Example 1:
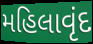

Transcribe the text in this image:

મહિલાવૃંદ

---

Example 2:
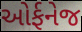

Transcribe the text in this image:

ઓર્ફનેજ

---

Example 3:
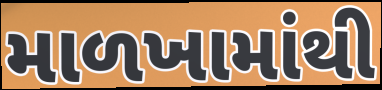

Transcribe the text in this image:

માળખામાંથી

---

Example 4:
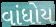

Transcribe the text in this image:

વાંધોય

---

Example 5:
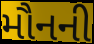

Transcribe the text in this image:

મૌનની